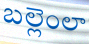
బల్లెంలా